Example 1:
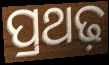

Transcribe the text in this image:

ପ୍ରଥଢ଼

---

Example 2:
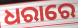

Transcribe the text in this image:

ଧରାରେ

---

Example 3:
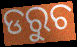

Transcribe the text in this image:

ଡରୁଚ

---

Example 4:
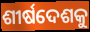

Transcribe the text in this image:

ଶୀର୍ଷଦେଶକୁ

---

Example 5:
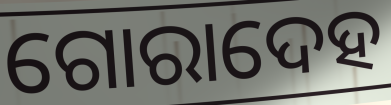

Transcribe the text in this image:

ଗୋରାଦେହ